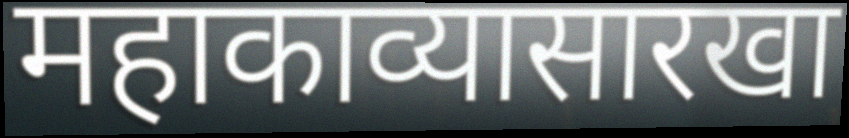
महाकाव्यासारखा